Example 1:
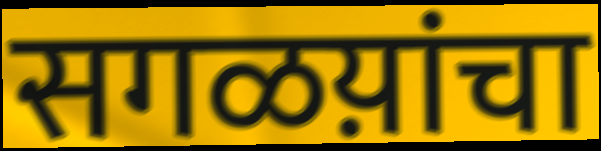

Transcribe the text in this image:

सगळय़ांचा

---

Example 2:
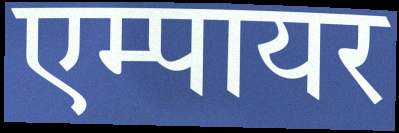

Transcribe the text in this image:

एम्पायर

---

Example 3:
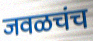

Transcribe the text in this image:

जवळचंच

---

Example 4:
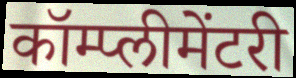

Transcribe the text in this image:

कॉम्प्लीमेंटरी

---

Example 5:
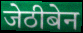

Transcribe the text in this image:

जेठीबेन